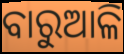
ବାରୁଆଳି